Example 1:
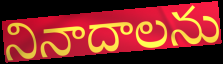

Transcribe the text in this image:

నినాదాలను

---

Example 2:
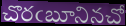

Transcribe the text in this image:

చొరఁబూనినచో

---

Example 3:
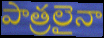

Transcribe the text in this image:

పాత్రలైనా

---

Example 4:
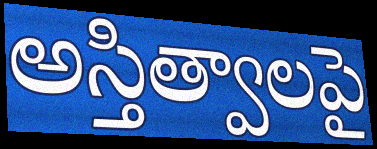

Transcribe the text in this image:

అస్తిత్వాలపై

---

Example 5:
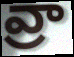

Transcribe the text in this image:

వ్రా